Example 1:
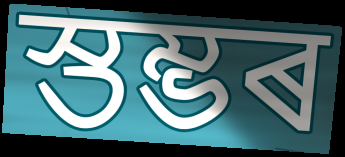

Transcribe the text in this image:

স্তম্ভৰ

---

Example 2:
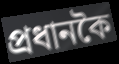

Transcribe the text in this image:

প্ৰধানকৈ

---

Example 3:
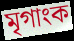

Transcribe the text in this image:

মৃগাংক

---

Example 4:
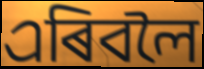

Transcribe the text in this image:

এৰিবলৈ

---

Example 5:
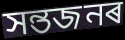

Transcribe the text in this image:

সন্তজনৰ